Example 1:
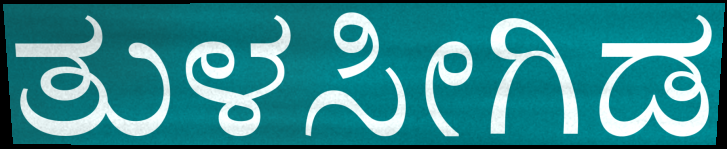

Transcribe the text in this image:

ತುಳಸೀಗಿಡ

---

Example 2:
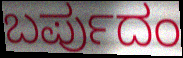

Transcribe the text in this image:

ಬರ್ಪುದಂ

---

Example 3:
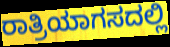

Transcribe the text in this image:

ರಾತ್ರಿಯಾಗಸದಲ್ಲಿ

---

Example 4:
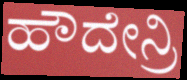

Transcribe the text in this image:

ಹೌದೇನ್ರಿ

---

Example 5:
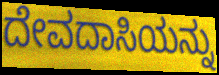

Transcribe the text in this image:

ದೇವದಾಸಿಯನ್ನು